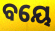
ବୟେ